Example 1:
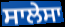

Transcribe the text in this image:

ਸਾਲੇਸਾ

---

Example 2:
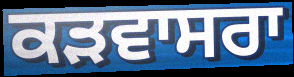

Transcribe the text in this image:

ਕੜਵਾਸਰਾ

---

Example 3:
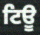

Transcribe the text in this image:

ਟਿਊ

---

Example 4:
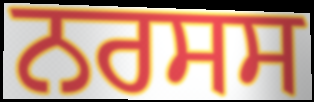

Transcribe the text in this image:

ਨਰਸਸ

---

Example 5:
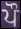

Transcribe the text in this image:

ਪੌ